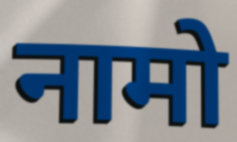
नामो